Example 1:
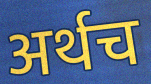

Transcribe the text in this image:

अर्थच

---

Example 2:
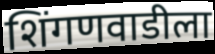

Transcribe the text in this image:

शिंगणवाडीला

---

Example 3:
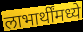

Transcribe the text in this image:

लाभार्थींमध्ये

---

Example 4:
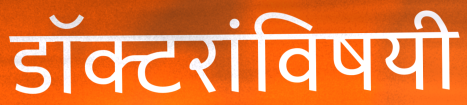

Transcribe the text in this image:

डॉक्टरांविषयी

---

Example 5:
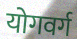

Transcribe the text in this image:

योगवर्ग